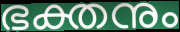
ഭക്തനും